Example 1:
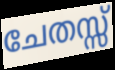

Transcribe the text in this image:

ചേതസ്സ്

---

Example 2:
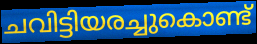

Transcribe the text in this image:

ചവിട്ടിയരച്ചുകൊണ്ട്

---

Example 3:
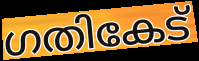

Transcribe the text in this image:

ഗതികേട്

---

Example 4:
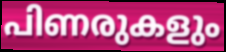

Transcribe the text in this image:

പിണരുകളും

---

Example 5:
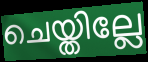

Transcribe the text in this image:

ചെയ്തില്ലേ